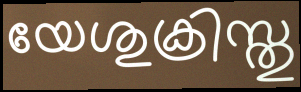
യേശുക്രിസ്തു